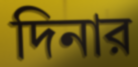
দিনার